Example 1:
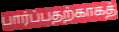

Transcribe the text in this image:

பார்ப்பதற்காகத்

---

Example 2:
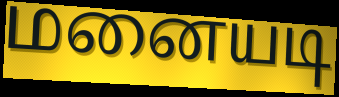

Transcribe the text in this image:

மனையடி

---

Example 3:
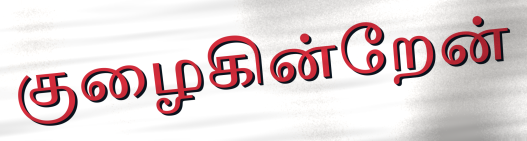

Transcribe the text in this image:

குழைகின்றேன்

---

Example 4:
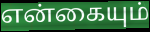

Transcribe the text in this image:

என்கையும்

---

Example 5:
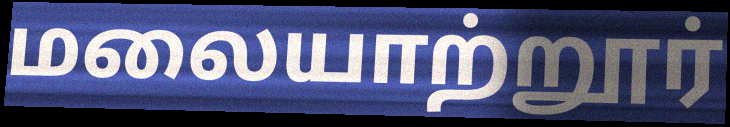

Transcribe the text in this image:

மலையாற்றூர்